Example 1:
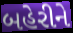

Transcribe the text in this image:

બહેરીને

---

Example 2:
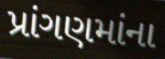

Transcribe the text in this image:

પ્રાંગણમાંના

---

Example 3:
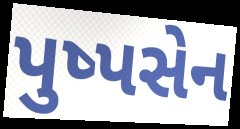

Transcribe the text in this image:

પુષ્પસેન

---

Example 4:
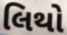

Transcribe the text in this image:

લિથો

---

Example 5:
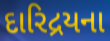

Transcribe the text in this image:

દારિદ્રયના